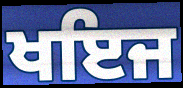
ਖਇਜ